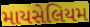
માયસેલિયમ